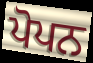
ਪੋਪਨ